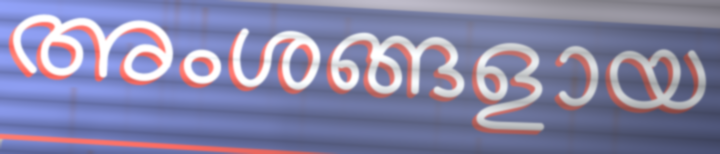
അംശങ്ങളായ